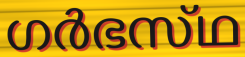
ഗർഭസ്‌ഥ